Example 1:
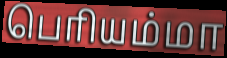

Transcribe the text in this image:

பெரியம்மா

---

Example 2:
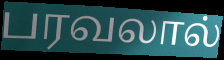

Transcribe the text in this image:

பரவலால்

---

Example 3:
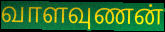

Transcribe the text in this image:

வாளவுணன்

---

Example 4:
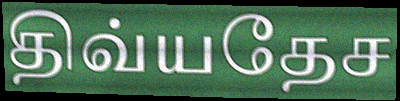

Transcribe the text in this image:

திவ்யதேச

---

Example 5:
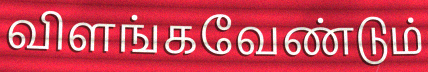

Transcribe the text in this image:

விளங்கவேண்டும்